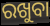
ରଖୁବା